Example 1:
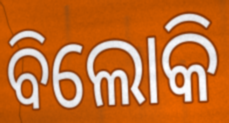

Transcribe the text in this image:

ବିଲୋକି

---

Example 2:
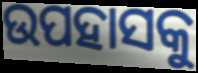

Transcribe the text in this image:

ଉପହାସକୁ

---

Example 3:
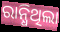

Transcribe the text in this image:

ରାନ୍ଧିଥିଲା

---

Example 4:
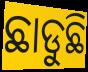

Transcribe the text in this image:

ଛାଡୁଛି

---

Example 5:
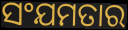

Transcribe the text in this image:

ସଂଯମତାର